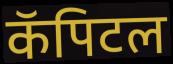
कॅपिटल